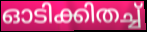
ഓടിക്കിതച്ച്